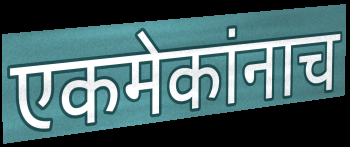
एकमेकांनाच